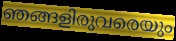
ഞങ്ങളിരുവരെയും